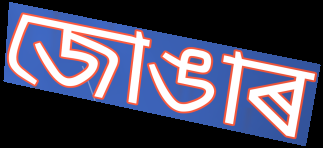
জোঙাৰ